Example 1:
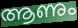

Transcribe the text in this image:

ആണും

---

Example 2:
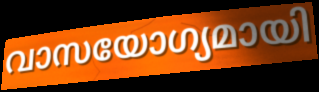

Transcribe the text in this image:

വാസയോഗ്യമായി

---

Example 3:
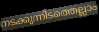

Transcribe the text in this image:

നടക്കുന്നിടത്തെല്ലാം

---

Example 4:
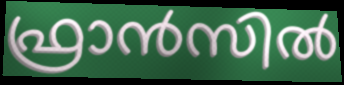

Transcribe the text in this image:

ഫ്രാൻസിൽ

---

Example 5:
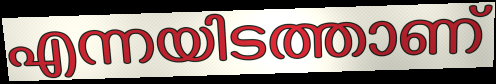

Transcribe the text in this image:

എന്നയിടത്താണ്